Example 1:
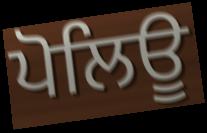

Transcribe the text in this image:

ਪੋਲਿਊ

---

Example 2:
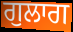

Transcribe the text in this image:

ਗੁਲਾਗ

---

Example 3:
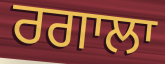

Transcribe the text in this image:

ਰਗਾਲਾ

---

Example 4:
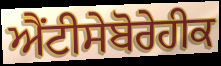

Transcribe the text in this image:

ਐਂਟੀਸੇਬੋਰੇਹੀਕ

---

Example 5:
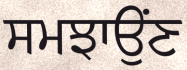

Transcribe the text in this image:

ਸਮਝਾਉਂਣ